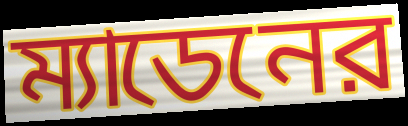
ম্যাডেনের